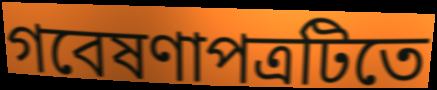
গবেষণাপত্রটিতে